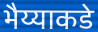
भैय्याकडे